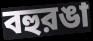
বহুরঙা